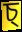
চ্